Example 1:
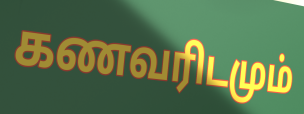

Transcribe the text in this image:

கணவரிடமும்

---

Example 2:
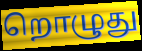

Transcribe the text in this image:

றொழுது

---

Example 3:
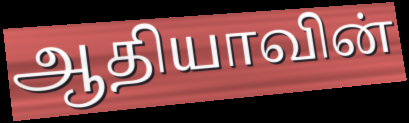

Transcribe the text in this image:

ஆதியாவின்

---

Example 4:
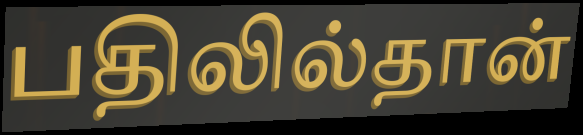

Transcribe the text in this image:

பதிலில்தான்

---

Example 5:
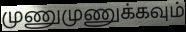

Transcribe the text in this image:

முணுமுணுக்கவும்